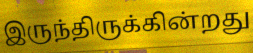
இருந்திருக்கின்றது